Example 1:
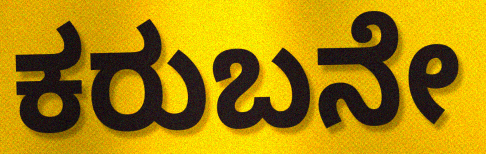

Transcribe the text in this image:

ಕರುಬನೇ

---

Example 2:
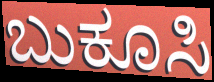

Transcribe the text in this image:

ಬುಕೂಸಿ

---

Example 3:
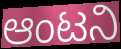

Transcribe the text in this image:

ಆಂಟನಿ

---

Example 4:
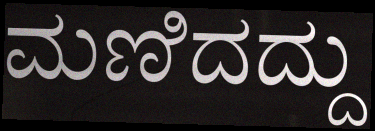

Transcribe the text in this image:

ಮಣಿದದ್ದು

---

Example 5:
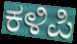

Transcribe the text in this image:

ಕಳಿಪಿ